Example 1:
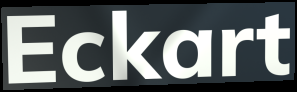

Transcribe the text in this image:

Eckart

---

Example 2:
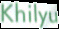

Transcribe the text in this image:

Khilyu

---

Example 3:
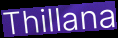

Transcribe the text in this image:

Thillana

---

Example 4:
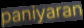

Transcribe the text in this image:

paniyaran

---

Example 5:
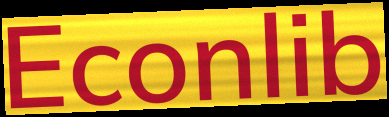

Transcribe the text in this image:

Econlib